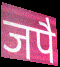
जपै